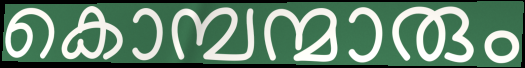
കൊമ്പന്മാരും